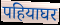
पहियाघर